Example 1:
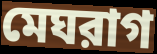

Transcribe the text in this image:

মেঘরাগ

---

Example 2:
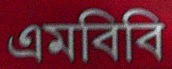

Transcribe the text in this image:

এমবিবি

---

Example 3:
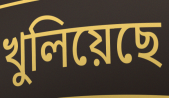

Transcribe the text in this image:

খুলিয়েছে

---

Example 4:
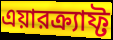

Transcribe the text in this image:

এয়ারক্র্যাফ্ট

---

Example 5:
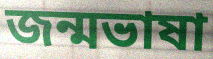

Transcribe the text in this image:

জন্মভাষা